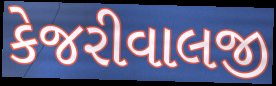
કેજરીવાલજી